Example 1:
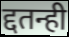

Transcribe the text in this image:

द्दतन्ही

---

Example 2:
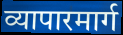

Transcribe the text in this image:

व्यापारमार्ग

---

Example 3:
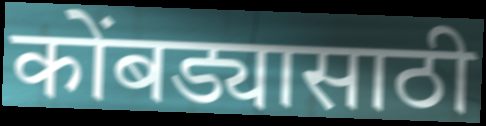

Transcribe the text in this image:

कोंबड्यासाठी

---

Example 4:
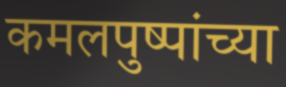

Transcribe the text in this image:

कमलपुष्पांच्या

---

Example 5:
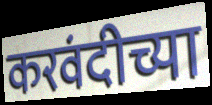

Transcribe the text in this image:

करवंदीच्या